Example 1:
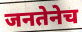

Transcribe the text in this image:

जनतेनेच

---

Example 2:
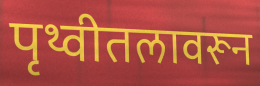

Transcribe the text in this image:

पृथ्वीतलावरून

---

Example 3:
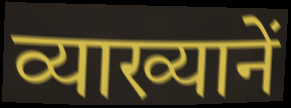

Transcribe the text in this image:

व्याख्यानें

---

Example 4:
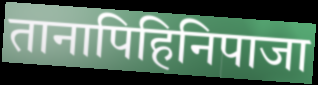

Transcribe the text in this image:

तानापिहिनिपाजा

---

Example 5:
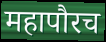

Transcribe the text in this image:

महापौरच